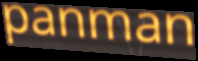
panman